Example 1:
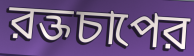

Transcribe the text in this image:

রক্তচাপের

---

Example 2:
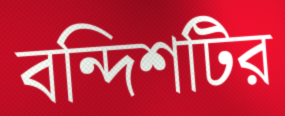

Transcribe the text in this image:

বন্দিশটির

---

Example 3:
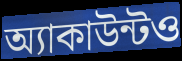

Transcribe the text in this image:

অ্যাকাউন্টও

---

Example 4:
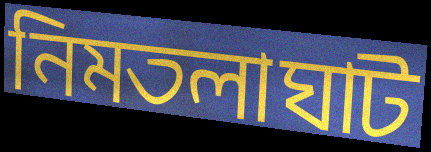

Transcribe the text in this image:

নিমতলাঘাট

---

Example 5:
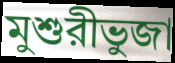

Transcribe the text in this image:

মুশুরীভুজা